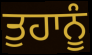
ਤੁਹਾਨੂੰ